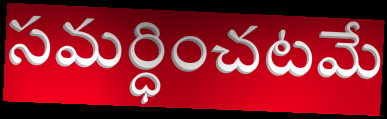
సమర్ధించటమే